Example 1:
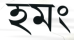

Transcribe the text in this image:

হমং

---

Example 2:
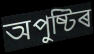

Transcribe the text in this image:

অপুষ্টিৰ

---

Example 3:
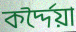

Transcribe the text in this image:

কৰ্দ্দৈয়া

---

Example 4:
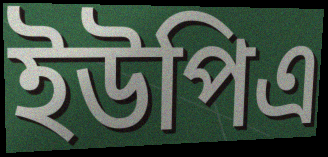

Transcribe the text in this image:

ইউপিএ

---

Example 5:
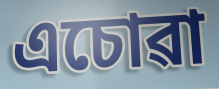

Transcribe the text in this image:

এচোৱা